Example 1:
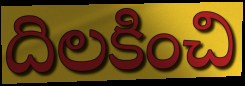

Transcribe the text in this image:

దిలకించి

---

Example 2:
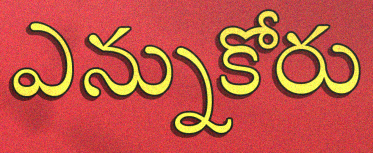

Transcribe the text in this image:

ఎన్నుకోరు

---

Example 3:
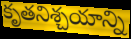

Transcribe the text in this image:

కృతనిశ్చయాన్ని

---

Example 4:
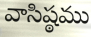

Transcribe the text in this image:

వాసిష్ఠము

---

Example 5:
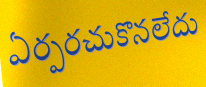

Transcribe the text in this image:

ఏర్పరచుకొనలేదు